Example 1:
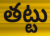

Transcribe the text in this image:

తట్టు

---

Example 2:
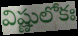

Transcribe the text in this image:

విష్ణులోకః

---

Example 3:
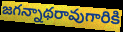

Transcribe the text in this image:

జగన్నాథరావుగారికి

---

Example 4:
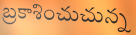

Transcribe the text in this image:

బ్రకాశించుచున్న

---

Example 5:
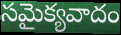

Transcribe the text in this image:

సమైక్యవాదం